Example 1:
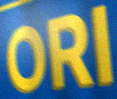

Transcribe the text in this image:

ORI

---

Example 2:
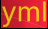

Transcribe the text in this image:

yml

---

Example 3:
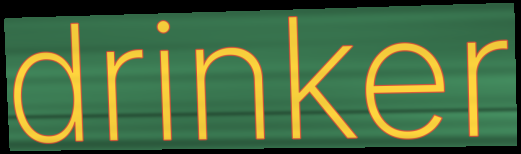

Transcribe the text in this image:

drinker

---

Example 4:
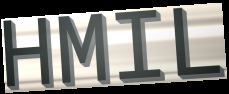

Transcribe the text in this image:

HMIL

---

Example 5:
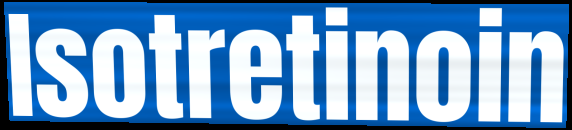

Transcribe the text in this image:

Isotretinoin